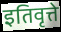
इतिवृत्ते